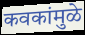
कवकांमुळे